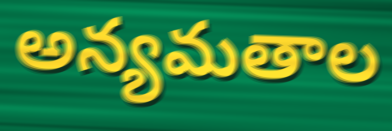
అన్యమతాల